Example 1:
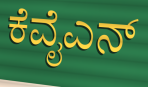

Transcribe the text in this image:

ಕೆವೈಎನ್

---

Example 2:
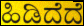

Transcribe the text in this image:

ಹಿಡಿದೆದೆ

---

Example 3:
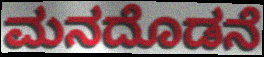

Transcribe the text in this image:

ಮನದೊಡನೆ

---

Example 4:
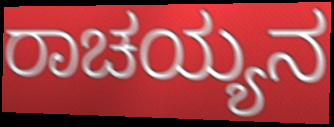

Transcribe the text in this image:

ರಾಚಯ್ಯನ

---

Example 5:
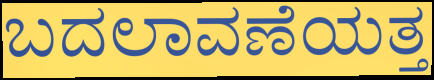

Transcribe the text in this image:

ಬದಲಾವಣೆಯತ್ತ